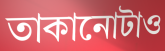
তাকানোটাও